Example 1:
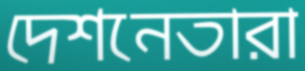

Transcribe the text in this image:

দেশনেতারা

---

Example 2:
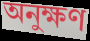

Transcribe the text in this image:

অনুক্ষণ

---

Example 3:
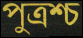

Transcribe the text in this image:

পুত্রশ্চ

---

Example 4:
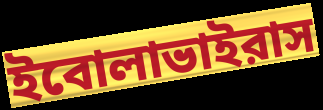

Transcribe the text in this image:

ইবোলাভাইরাস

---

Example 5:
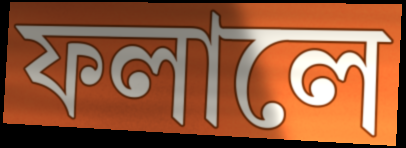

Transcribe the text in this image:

ফলালে